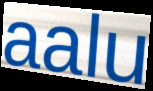
aalu